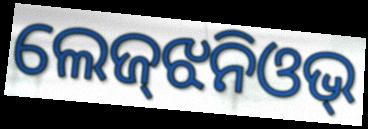
ଲେଜ୍‌ଝନିଓଭ୍